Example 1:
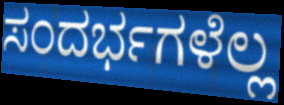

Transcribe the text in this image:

ಸಂದರ್ಭಗಳೆಲ್ಲ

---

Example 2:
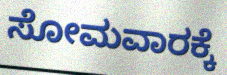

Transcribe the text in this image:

ಸೋಮವಾರಕ್ಕೆ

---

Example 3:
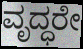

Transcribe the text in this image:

ವೃದ್ಧರೇ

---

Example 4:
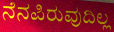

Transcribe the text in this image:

ನೆನಪಿರುವುದಿಲ್ಲ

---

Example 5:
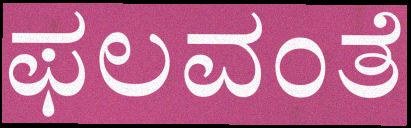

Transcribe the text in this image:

ಫಲವಂತೆ